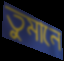
তুমানে